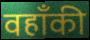
वहाँकी